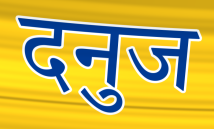
दनुज